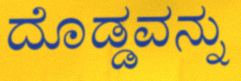
ದೊಡ್ಡವನ್ನು